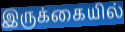
இருக்கையில்